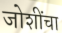
जोशींचा